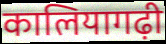
कालियागढ़ी